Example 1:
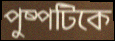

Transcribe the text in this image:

পুষ্পটিকে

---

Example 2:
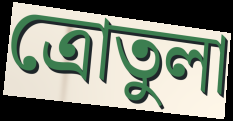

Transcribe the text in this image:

ত্রোতুলা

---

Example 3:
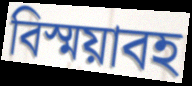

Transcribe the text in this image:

বিস্ময়াবহ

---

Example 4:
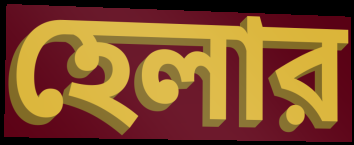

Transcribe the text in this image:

হেলার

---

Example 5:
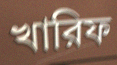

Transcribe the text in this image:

খারিফ